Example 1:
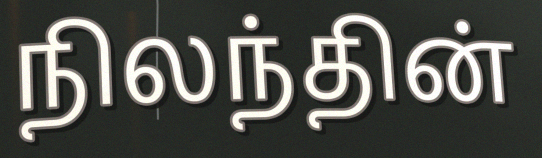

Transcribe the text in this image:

நிலந்தின்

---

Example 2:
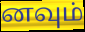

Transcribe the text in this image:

னவும்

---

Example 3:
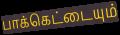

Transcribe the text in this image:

பாக்கெட்டையும்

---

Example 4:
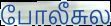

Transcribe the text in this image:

போலீசுல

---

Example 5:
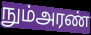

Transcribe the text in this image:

நும்அரண்